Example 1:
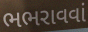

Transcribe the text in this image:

ભભરાવવાં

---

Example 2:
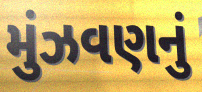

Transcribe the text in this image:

મુંઝવણનું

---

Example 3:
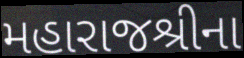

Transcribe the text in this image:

મહારાજશ્રીના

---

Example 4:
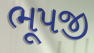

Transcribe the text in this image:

ભૂપજી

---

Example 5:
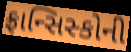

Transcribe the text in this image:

ફ્રાન્સિસ્કોની